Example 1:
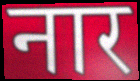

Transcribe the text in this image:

नार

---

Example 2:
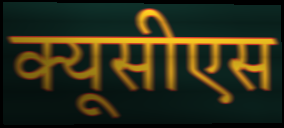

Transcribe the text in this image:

क्यूसीएस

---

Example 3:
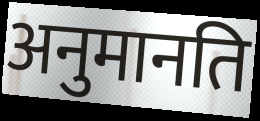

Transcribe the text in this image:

अनुमानति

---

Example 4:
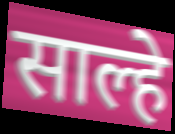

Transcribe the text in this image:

साल्हे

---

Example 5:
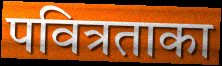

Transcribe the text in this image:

पवित्रताका